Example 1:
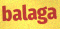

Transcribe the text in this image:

balaga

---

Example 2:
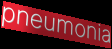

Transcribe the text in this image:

pneumonia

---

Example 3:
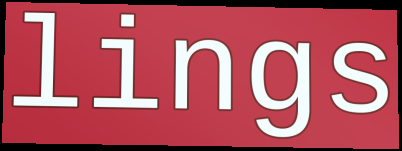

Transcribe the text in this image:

lings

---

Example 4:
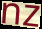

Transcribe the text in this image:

nz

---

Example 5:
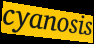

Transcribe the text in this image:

cyanosis